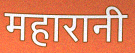
महारानी